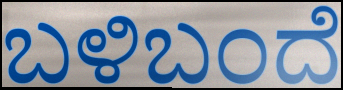
ಬಳಿಬಂದೆ